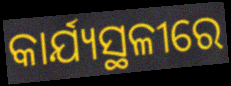
କାର୍ଯ୍ୟସ୍ଥଳୀରେ